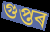
গুপ্তৰ